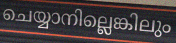
ചെയ്യാനില്ലെങ്കിലും